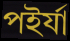
পইর্যা